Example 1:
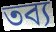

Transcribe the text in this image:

তব্য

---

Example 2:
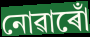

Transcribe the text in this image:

নোৱাৰোঁ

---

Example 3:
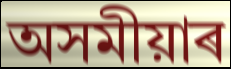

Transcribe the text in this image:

অসমীয়াৰ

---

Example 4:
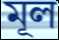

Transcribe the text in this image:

মূল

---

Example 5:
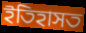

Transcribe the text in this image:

ইতিহাসত